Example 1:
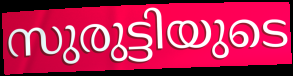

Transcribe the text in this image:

സുരുട്ടിയുടെ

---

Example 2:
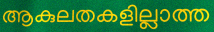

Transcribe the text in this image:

ആകുലതകളില്ലാത്ത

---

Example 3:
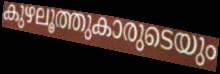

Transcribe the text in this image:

കുഴലൂത്തുകാരുടെയും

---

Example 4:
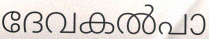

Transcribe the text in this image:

ദേവകൽപാ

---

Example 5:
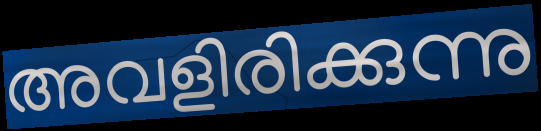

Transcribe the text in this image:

അവളിരിക്കുന്നു